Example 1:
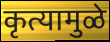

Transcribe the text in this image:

कृत्यामुळे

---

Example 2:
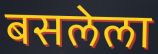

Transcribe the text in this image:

बसलेला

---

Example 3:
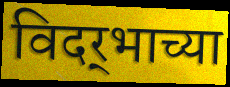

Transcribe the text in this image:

विदर्भाच्या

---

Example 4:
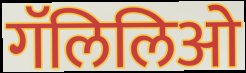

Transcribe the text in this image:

गॅलिलिओ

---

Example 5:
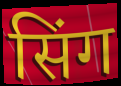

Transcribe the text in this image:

सिंग